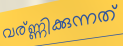
വര്ണ്ണിക്കുന്നത്